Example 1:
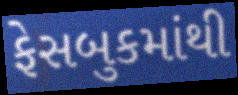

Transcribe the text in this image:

ફેસબુકમાંથી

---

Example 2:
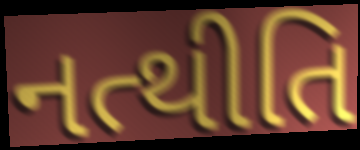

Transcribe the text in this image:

નત્થીતિ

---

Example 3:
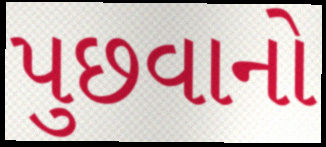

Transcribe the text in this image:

પુછવાનો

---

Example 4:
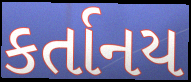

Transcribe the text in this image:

કર્તાનય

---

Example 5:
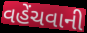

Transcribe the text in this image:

વહેંચવાની